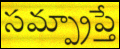
సమ్ప్రాప్తే